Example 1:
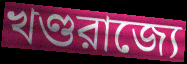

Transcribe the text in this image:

খণ্ডরাজ্যে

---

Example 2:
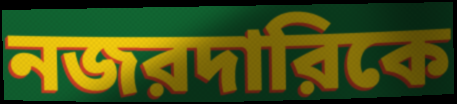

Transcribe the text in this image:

নজরদারিকে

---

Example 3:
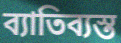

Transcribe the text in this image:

ব্যাতিব্যস্ত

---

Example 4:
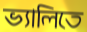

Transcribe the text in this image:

ভ্যালিতে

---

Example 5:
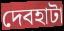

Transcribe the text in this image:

দেবহাটা